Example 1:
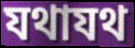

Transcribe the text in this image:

যথাযথ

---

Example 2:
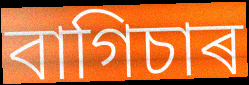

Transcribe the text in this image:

বাগিচাৰ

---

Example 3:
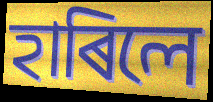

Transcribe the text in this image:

হাৰিলে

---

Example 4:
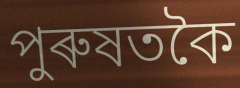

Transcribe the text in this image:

পুৰুষতকৈ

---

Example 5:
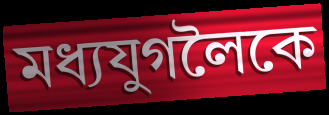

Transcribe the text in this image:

মধ্যযুগলৈকে